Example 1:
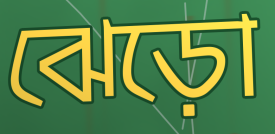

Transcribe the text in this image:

ঝেড়ো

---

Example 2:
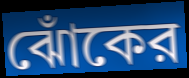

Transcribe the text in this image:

ঝোঁকের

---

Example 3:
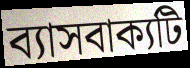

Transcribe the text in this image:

ব্যাসবাক্যটি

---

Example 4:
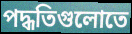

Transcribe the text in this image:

পদ্ধতিগুলোতে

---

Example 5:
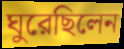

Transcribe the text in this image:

ঘুরেছিলেন